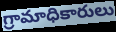
గ్రామాధికారులు